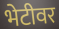
भेटीवर